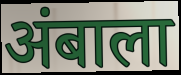
अंबाला